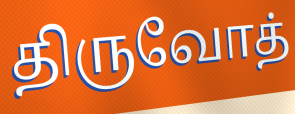
திருவோத்